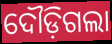
ଦୌଡ଼ିଗଲା